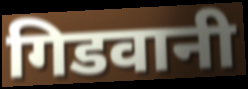
गिडवानी